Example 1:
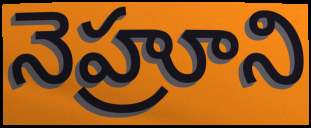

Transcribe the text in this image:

నెహ్రూని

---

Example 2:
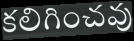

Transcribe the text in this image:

కలిగించవు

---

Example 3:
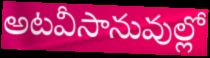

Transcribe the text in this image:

అటవీసానువుల్లో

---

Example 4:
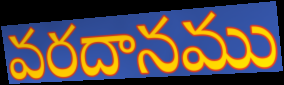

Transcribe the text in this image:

వరదానము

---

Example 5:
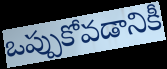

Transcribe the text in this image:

ఒప్పుకోవడానికీ